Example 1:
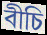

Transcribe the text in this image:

বীচি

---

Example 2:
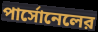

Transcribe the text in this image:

পার্সোনেলের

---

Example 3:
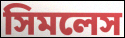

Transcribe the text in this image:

সিমলেস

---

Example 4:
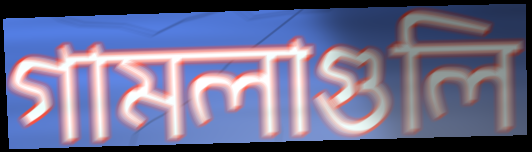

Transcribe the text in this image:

গামলাগুলি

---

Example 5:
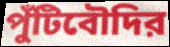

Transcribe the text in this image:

পুঁটিবৌদির